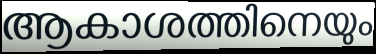
ആകാശത്തിനെയും